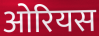
ओरियस